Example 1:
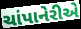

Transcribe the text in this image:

ચાંપાનેરીએ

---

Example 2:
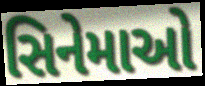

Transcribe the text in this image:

સિનેમાઓ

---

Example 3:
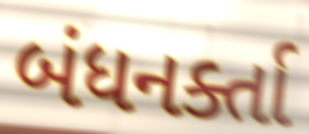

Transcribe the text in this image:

બંધનર્ક્તા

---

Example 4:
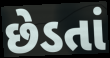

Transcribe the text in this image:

છેડતાં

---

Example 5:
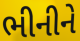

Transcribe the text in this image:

ભીનીને